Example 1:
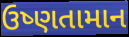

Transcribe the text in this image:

ઉષ્ણતામાન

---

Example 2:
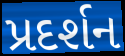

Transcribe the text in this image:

પ્રદર્શન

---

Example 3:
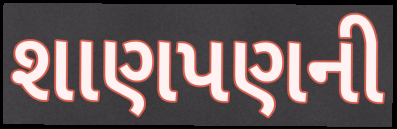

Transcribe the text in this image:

શાણપણની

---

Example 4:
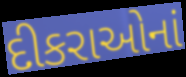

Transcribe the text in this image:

દીકરાઓનાં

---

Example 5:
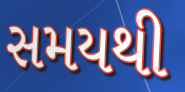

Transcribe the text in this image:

સમયથી